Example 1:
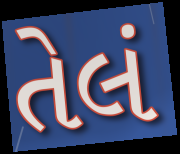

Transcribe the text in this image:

તેલં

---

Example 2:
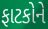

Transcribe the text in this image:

ફાટકોને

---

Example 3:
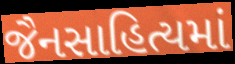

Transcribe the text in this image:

જૈનસાહિત્યમાં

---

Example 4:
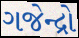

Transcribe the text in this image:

ગજેન્દ્રો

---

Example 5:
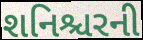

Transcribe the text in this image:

શનિશ્ચરની